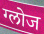
ग्लोज